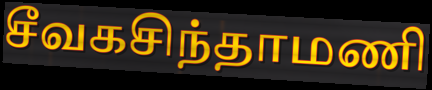
சீவகசிந்தாமணி